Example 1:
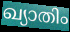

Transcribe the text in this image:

ഖ്യാതിം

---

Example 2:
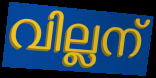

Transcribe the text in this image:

വില്ലന്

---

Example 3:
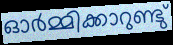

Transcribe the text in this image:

ഓർമ്മിക്കാറുണ്ടു്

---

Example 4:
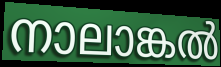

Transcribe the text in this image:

നാലാങ്കൽ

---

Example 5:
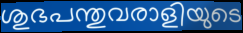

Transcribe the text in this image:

ശുഭപന്തുവരാളിയുടെ